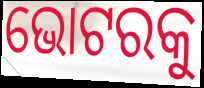
ଭୋଟରକୁ